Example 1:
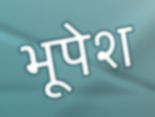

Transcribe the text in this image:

भूपेश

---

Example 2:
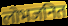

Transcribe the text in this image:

लोभजनित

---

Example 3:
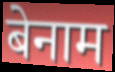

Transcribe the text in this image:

बेनाम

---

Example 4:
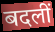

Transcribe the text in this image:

बदलीं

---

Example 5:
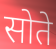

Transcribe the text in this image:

सोते